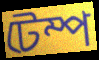
টেম্প